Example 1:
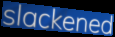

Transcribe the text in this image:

slackened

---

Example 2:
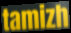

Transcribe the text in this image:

tamizh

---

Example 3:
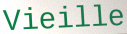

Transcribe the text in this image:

Vieille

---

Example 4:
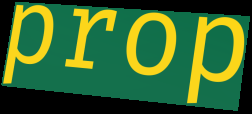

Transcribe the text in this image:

prop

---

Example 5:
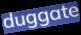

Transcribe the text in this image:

duggate